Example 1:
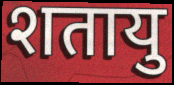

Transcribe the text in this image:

शतायु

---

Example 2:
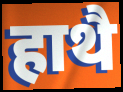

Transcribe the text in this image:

हाथै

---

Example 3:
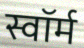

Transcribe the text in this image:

स्वॉर्म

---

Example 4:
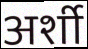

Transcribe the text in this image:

अर्शी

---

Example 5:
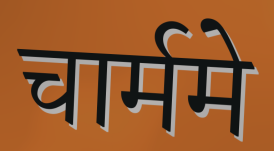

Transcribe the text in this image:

चार्ममे